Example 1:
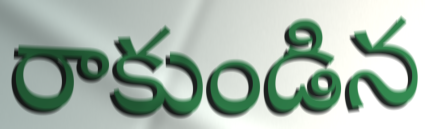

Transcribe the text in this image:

రాకుండిన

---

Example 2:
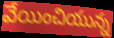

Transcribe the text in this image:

వేయించియున్న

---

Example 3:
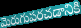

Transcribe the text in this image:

మెరుగుపరచడానికి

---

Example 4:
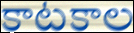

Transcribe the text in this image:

కాటకాల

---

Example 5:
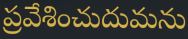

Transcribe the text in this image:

ప్రవేశించుదుమను